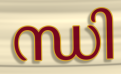
ന്ധി